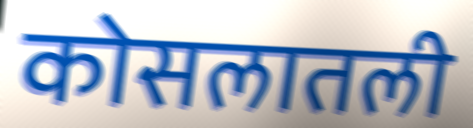
कोसलातली